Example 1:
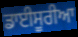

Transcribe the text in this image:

ਡਾਈਸੂਰੀਆ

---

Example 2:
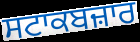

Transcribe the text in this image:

ਸਟਾਕਬਜ਼ਾਰ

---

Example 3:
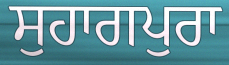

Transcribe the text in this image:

ਸੁਹਾਗਪੁਰਾ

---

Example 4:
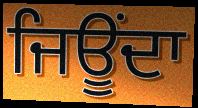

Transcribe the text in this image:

ਜਿਊਂਦਾ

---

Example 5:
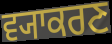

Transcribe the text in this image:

ਵ੍ਯਾਕਰਣ